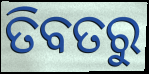
ତିବତରୁ